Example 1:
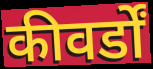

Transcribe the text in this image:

कीवर्डों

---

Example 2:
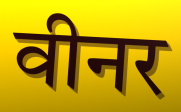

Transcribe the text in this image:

वीनर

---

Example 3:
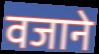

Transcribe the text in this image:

वजाने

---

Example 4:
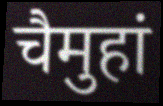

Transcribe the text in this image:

चैमुहां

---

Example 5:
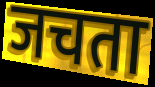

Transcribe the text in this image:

जचता